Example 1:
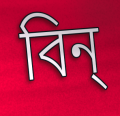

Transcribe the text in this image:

বিন্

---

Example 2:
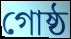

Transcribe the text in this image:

গোষ্ঠ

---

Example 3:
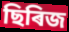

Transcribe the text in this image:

ছিৰিজ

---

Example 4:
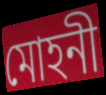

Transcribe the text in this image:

মোহনী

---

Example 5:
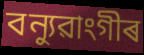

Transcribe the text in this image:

বন্যুৱাংগীৰ